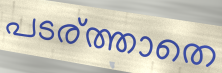
പടര്ത്താതെ